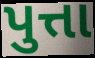
પુત્તા